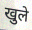
खुले